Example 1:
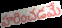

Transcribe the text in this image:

హరించడమే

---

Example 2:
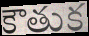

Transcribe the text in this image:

కౌతుక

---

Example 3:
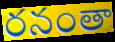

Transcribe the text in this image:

రనంతా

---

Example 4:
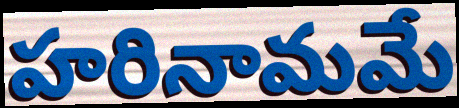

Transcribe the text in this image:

హరినామమే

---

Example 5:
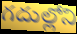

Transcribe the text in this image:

గదుల్లోని